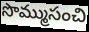
సొమ్ముసంచి